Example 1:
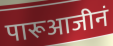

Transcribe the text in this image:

पारूआजीनं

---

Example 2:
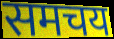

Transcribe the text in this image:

समचय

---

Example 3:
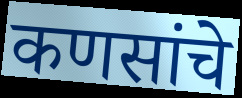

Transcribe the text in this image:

कणसांचे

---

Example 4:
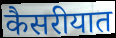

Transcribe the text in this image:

कैसरीयात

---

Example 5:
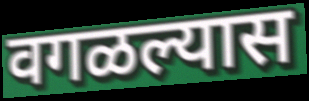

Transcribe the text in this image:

वगळल्यास